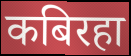
कबिरहा